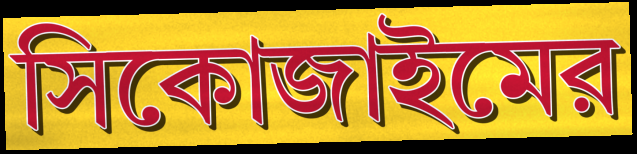
সিকোজাইমের